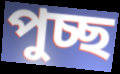
পুচ্ছ